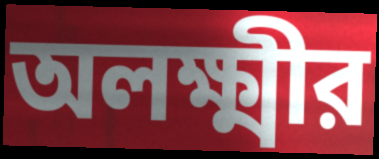
অলক্ষ্মীর